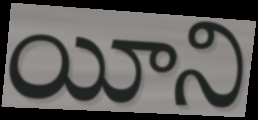
యీని